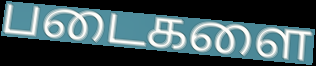
படைகளை